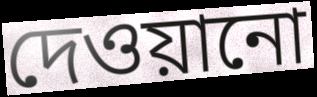
দেওয়ানো